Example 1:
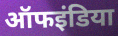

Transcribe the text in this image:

ऑफइंडिया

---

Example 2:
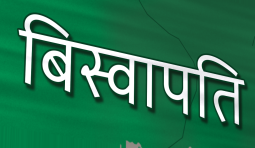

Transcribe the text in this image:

बिस्वापति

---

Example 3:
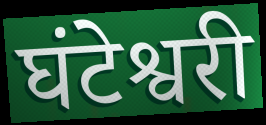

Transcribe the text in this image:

घंटेश्वरी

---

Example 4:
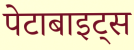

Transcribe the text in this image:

पेटाबाइट्स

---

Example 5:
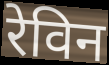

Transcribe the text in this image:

रेविन